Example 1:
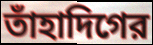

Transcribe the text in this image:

তাঁহাদিগের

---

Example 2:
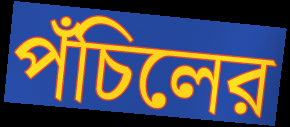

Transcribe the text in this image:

পঁচিলের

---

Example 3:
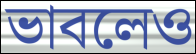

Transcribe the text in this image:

ভাবলেও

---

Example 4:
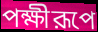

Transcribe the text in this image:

পক্ষীরূপে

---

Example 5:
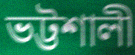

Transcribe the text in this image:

ভট্টশালী